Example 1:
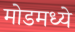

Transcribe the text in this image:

मोडमध्ये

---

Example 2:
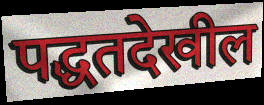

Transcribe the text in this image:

पद्धतदेखील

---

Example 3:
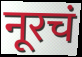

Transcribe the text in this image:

नूरचं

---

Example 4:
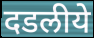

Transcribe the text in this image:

दडलीये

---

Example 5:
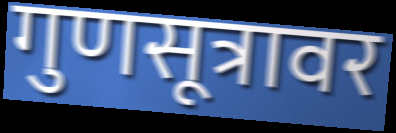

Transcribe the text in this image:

गुणसूत्रावर